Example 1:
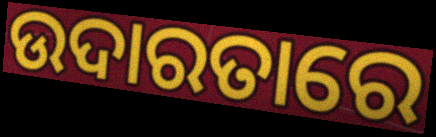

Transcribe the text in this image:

ଉଦାରତାରେ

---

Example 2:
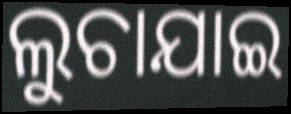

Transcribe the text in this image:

ଲୁଚାଯାଇ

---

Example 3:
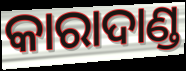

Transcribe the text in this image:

କାରାଦାଣ୍ଡ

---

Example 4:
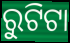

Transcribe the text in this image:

ରୁଟିଟା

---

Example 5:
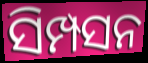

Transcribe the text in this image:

ସିମ୍ପସନ